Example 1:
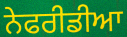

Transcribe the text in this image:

ਨੇਫਰੀਡੀਆ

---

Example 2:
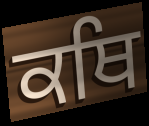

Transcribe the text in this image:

ਕਥਿ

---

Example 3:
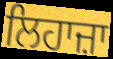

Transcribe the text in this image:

ਲਿਹਾਜ਼ਾ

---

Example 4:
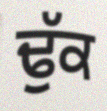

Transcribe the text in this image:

ਢੁੱਕ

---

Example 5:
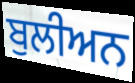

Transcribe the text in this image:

ਬੁਲੀਅਨ